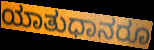
ಯಾತುಧಾನರೂ